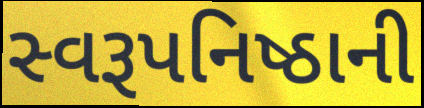
સ્વરૂપનિષ્ઠાની